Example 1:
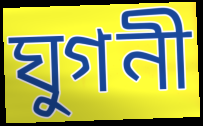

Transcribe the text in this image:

ঘুগনী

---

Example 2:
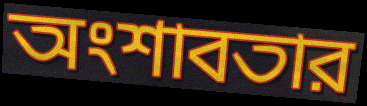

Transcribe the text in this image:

অংশাবতার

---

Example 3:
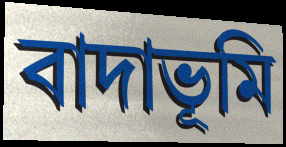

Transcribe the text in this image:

বাদাভূমি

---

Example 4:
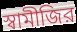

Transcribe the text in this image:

স্বামীজির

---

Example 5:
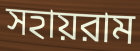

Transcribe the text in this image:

সহায়রাম